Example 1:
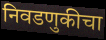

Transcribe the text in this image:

निवडणुकीचा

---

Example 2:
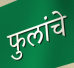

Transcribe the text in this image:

फुलांचे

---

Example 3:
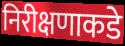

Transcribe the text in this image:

निरीक्षणाकडे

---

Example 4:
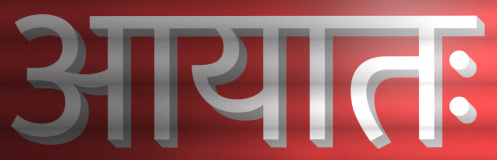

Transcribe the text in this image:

आयातः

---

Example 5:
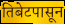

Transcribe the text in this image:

तिबेटपासून